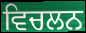
ਵਿਚਲਨ